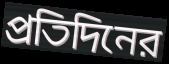
প্রতিদিনের